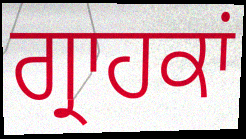
ਗ੍ਰਾਹਕਾਂ